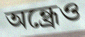
অন্ধ্রেও